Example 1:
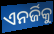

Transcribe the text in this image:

ଏନର୍ଜିକୁ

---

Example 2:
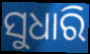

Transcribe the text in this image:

ସୁଧାରି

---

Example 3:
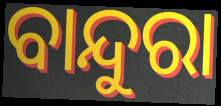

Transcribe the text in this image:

ବାନ୍ଦୁରା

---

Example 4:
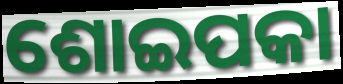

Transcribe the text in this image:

ଶୋଇପକା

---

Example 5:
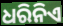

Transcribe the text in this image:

ଧରିନିଏ